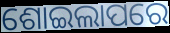
ଶୋଇଲାପରେ